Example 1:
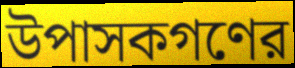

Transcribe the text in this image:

উপাসকগণের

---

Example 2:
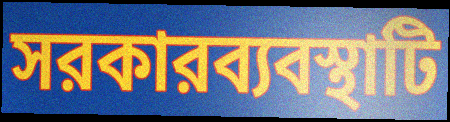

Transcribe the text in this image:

সরকারব্যবস্থাটি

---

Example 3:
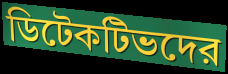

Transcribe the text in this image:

ডিটেকটিভদের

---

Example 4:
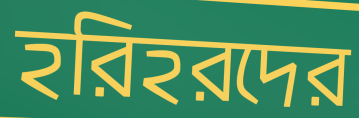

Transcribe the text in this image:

হরিহরদের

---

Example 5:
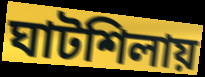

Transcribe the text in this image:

ঘাটশিলায়